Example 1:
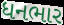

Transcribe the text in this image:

ધનભાર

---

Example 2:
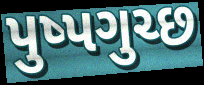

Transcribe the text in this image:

પુષ્પગુચ્છ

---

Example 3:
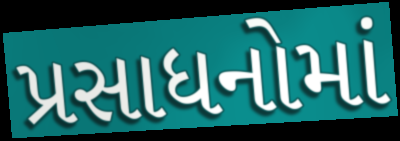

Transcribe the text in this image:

પ્રસાધનોમાં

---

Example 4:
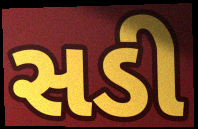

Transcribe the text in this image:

સડી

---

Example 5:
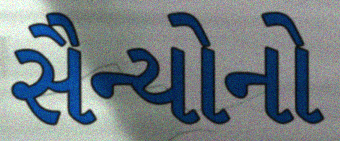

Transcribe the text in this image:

સૈન્યોનો